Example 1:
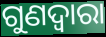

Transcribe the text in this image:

ଗୁଣଦ୍ଵାରା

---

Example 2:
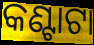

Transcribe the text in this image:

କଣ୍ଟାଟା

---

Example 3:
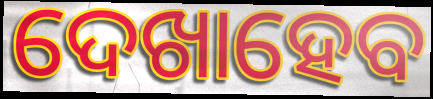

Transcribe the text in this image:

ଦେଖାହେବ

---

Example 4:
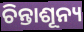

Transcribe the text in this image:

ଚିନ୍ତାଶୂନ୍ୟ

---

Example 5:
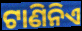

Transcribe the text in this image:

ଟାଣିନିଏ